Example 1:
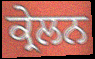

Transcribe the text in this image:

ਕ੍ਰੇਲਨ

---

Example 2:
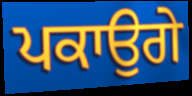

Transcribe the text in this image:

ਪਕਾਉਗੇ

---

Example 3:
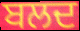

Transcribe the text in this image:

ਬਲਦ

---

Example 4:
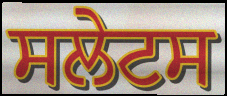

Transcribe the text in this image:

ਸਲੇਟਸ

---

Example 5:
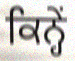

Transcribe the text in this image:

ਕਿਨ੍ਹੇਂ